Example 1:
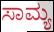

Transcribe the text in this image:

ಸಾಮ್ಯ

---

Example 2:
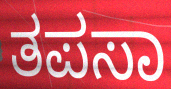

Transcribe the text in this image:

ತಪಸಾ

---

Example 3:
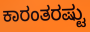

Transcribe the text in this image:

ಕಾರಂತರಷ್ಟು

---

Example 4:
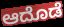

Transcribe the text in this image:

ಆದೊಡೆ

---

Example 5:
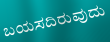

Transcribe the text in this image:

ಬಯಸದಿರುವುದು